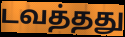
டவத்தது